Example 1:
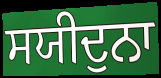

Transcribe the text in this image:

ਸਯੀਦੁਨਾ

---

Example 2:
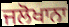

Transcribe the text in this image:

ਜਲੋਖਾਨਾ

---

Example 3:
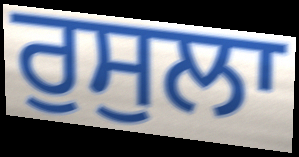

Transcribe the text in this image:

ਰੁਸੁਲਾ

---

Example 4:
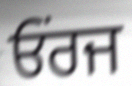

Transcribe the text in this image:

ਓਂਰਜ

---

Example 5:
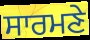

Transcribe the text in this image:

ਸਾਰਮਣੇ